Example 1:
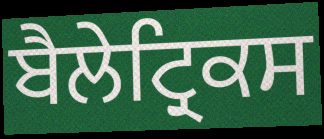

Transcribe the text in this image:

ਬੈਲੇਟ੍ਰਿਕਸ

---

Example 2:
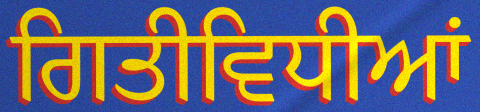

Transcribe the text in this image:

ਗਿਤੀਵਿਧੀਆਂ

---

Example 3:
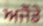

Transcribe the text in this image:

ਅਜੈਂਡੇ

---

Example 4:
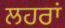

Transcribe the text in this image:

ਲਹਰਾਂ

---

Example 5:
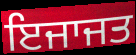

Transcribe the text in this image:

ਇਜਾਜਤ